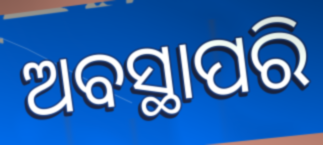
ଅବସ୍ଥାପରି